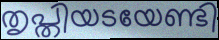
തൃപ്തിയടയേണ്ടി